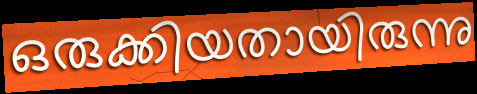
ഒരുക്കിയതായിരുന്നു